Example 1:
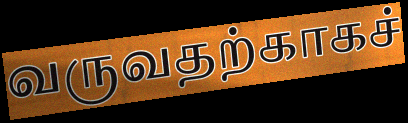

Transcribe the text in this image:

வருவதற்காகச்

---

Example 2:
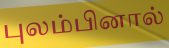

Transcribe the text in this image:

புலம்பினால்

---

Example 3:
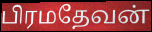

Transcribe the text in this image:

பிரமதேவன்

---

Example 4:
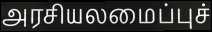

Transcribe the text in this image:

அரசியலமைப்புச்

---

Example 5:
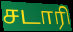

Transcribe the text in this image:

சடாரி